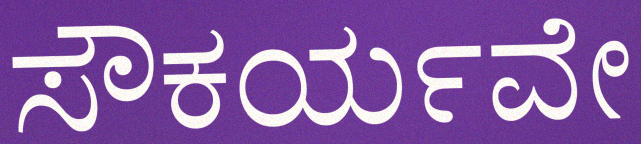
ಸೌಕರ್ಯವೇ